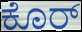
ಕೊರ್